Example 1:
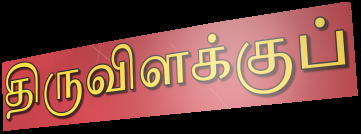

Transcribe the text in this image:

திருவிளக்குப்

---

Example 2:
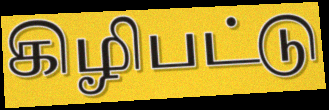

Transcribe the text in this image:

கிழிபட்டு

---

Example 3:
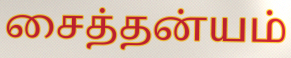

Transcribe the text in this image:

சைத்தன்யம்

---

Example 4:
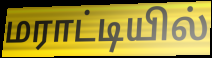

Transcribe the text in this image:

மராட்டியில்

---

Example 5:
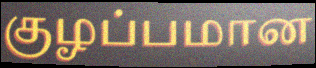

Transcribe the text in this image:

குழப்பமான